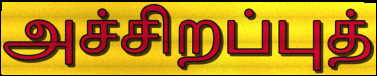
அச்சிறப்புத்